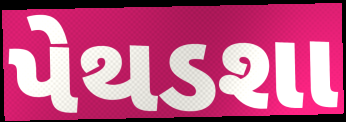
પેથડશા